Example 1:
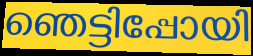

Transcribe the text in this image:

ഞെട്ടിപ്പോയി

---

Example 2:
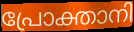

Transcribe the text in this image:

പ്രോക്താനി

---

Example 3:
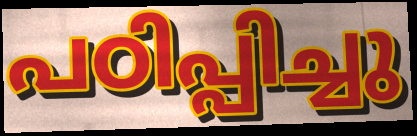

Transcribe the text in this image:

പഠിപ്പിച്ചു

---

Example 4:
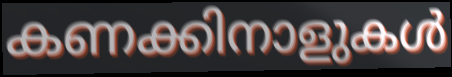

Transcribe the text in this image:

കണക്കിനാളുകൾ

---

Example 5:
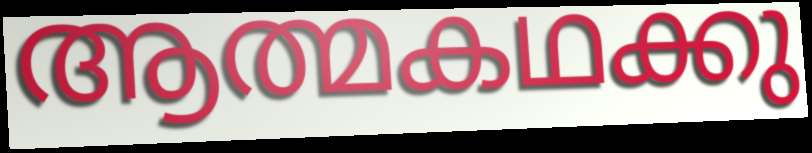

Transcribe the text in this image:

ആത്മകഥക്കു